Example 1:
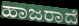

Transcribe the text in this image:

ಹಾಜರಾದೆ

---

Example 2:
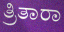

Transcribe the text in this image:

ತ್ರಿತಾರಾ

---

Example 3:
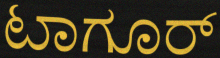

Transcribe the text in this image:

ಟಾಗೂರ್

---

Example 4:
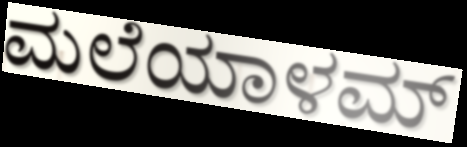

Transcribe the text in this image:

ಮಲೆಯಾಳಮ್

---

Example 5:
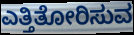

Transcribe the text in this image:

ಎತ್ತಿತೋರಿಸುವ